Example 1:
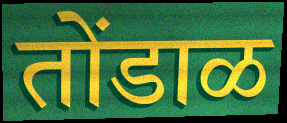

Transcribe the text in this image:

तोंडाळ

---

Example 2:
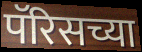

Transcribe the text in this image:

पॅरिसच्या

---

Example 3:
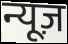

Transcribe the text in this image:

न्यूज़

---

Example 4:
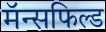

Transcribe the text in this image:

मॅन्सफिल्ड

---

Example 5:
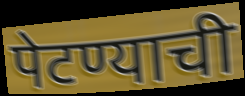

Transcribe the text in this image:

पेटण्याची